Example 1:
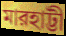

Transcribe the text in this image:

মারহাট্টী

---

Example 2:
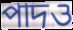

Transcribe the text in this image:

পাদও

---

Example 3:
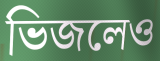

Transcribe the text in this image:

ভিজলেও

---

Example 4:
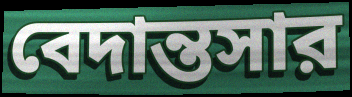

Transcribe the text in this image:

বেদান্তসার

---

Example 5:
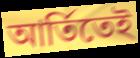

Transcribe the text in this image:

আর্তিতেই